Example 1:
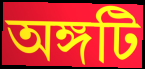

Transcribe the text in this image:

অঙ্গটি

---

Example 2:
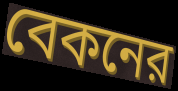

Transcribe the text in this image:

বেকনের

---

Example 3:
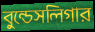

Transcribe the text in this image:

বুন্ডেসলিগার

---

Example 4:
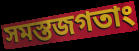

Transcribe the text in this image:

সমস্তজগতাং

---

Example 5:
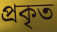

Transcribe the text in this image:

প্রকৃত